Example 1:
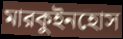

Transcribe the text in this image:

মারকুইনহোস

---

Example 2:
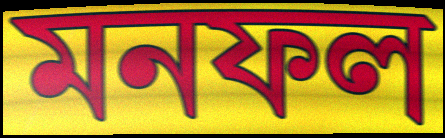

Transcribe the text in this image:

মনফল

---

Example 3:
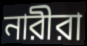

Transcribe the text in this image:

নারীরা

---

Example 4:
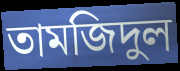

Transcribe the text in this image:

তামজিদুল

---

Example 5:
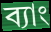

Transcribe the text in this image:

ব্যাং